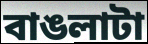
বাঙলাটা